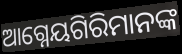
ଆଗ୍ନେୟଗିରିମାନଙ୍କ